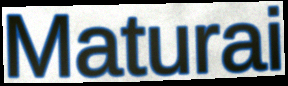
Maturai